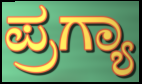
ಪ್ರಗ್ಯಾ